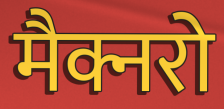
मैक्नरो